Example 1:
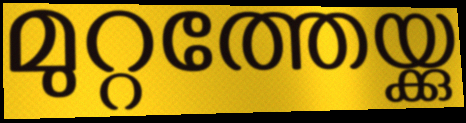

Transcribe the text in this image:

മുറ്റത്തേയ്ക്കു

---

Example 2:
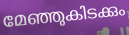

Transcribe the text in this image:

മേഞ്ഞുകിടക്കും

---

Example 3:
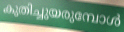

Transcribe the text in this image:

കുതിച്ചുയരുമ്പോൾ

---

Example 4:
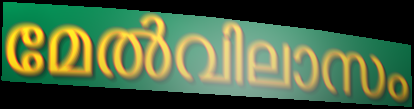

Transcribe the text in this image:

മേൽവിലാസം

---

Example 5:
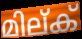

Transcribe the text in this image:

മില്ക്